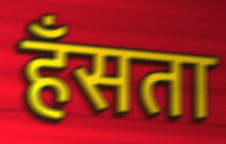
हॅंसता